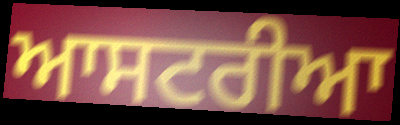
ਆਸਟਰੀਆ